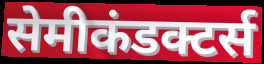
सेमीकंडक्टर्स